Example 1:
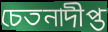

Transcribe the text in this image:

চেতনাদীপ্ত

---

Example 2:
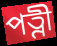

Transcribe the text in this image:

পত্নী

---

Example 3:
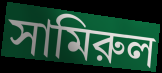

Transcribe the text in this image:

সামিরুল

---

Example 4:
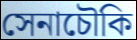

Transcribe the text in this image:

সেনাচৌকি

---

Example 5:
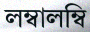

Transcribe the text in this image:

লম্বালম্বি